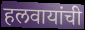
हलवायांची